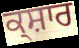
ਕ੍ਸ਼ਾਰ